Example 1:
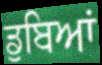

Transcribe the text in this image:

ਡੁਬਿਆਂ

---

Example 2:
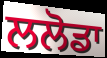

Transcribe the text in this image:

ਲਲੋਡਾ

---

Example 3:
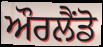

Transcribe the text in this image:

ਔਰਲੈਂਡੋ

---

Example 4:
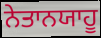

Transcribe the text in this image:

ਨੇਤਾਨਯਾਹੂ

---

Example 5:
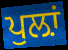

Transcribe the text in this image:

ਪੁਲ਼ਾਂ